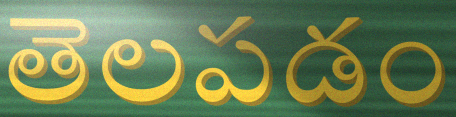
తెలపడం